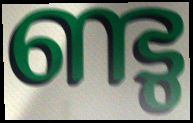
ണ്ടു